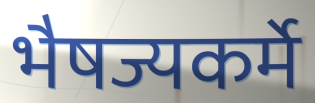
भैषज्यकर्मे